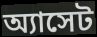
অ্যাসেট